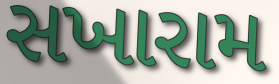
સખારામ